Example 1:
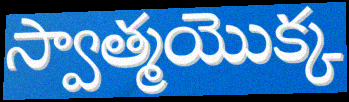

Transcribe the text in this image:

స్వాత్మయొక్క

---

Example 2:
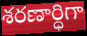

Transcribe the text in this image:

శరణార్ధిగా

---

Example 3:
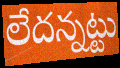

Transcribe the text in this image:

లేదన్నట్టు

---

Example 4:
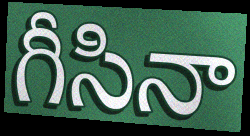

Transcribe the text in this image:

గీసినా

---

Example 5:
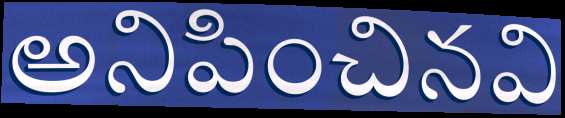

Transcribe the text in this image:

అనిపించినవి